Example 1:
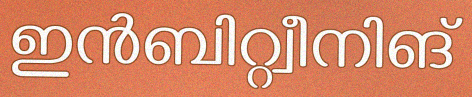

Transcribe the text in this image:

ഇൻബിറ്റ്വീനിങ്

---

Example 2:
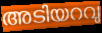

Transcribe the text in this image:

അടിയറവു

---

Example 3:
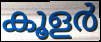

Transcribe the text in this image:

കൂളർ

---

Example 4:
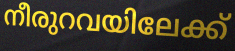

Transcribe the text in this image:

നീരുറവയിലേക്ക്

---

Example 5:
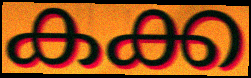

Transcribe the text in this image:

കക്ക